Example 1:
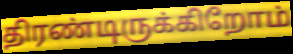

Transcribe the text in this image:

திரண்டிருக்கிறோம்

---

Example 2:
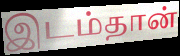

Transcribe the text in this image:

இடம்தான்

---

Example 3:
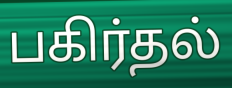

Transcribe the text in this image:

பகிர்தல்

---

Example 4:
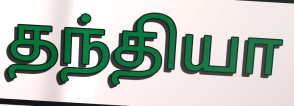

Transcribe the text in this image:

தந்தியா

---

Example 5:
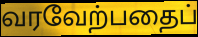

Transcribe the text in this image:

வரவேற்பதைப்